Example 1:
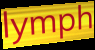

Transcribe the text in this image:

lymph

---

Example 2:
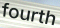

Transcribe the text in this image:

fourth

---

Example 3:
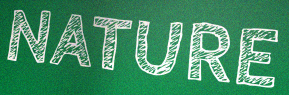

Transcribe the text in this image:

NATURE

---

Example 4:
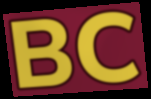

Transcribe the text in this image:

BC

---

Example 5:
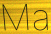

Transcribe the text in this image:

Ma